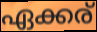
ഏക്കര്